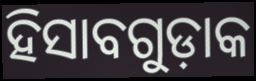
ହିସାବଗୁଡ଼ାକ